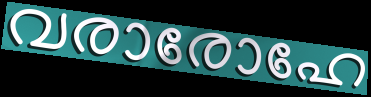
വരാരോഹേ